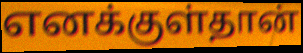
எனக்குள்தான்